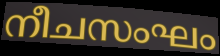
നീചസംഘം